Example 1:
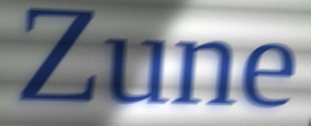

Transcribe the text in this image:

Zune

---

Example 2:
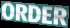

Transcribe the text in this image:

ORDER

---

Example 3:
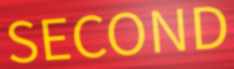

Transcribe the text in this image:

SECOND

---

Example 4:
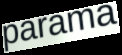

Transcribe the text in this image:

parama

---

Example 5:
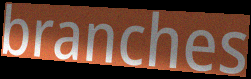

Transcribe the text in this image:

branches